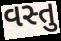
વસ્તુ